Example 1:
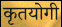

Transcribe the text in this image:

कृतयोगी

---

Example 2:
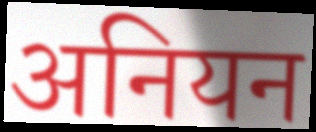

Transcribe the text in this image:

अनियन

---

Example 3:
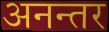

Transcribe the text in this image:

अनन्तर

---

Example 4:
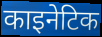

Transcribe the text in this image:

काइनेटिक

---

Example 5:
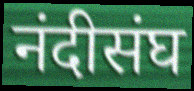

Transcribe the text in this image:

नंदीसंघ